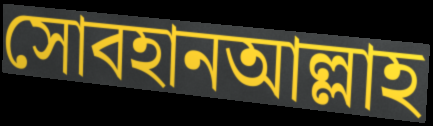
সোবহানআল্লাহ